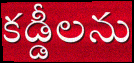
కడ్డీలను